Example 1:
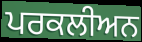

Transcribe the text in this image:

ਪਰਕਲੀਅਨ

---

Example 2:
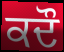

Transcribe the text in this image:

ਕਦੌ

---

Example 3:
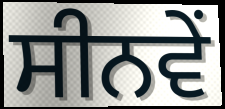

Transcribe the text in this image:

ਸੀਨਵੇਂ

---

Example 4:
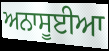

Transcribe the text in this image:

ਅਨਾਸੂਈਆ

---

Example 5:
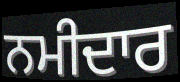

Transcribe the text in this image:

ਨਮੀਦਾਰ